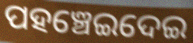
ପହଞ୍ଚେଇଦେଇ